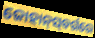
ଜୋହାନ୍‌ସ୍‌ବର୍ଗରେ